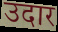
उदार